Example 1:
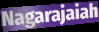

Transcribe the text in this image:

Nagarajaiah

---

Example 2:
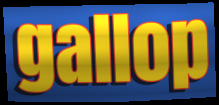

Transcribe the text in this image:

gallop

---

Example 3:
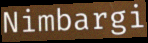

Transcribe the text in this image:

Nimbargi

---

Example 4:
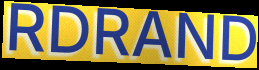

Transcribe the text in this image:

RDRAND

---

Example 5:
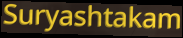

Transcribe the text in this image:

Suryashtakam